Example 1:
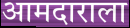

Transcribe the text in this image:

आमदाराला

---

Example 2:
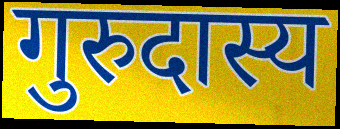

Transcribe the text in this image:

गुरुदास्य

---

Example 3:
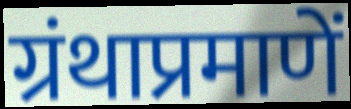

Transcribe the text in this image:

ग्रंथाप्रमाणें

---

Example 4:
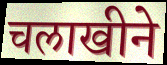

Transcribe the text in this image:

चलाखीने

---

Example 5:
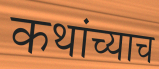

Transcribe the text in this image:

कथांच्याच